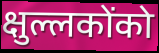
क्षुल्लकोंको